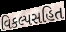
વિકલ્પસહિત